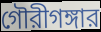
গৌরীগঙ্গার